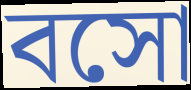
বসো